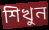
শিখুন